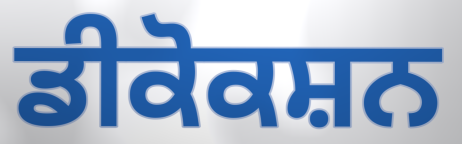
ਡੀਕੋਕਸ਼ਨ